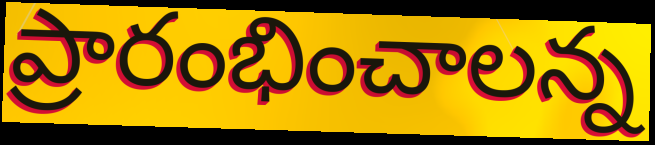
ప్రారంభించాలన్న